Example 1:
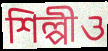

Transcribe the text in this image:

শিল্পীও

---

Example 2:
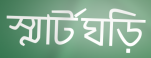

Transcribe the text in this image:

স্মার্টঘড়ি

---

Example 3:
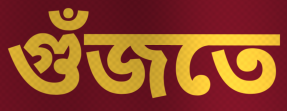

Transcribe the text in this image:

গুঁজতে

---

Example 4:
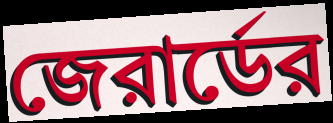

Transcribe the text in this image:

জেরার্ডের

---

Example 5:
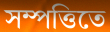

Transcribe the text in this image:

সম্পত্তিতে